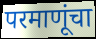
परमाणूंचा